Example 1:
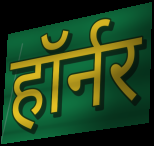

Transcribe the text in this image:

हॉर्नर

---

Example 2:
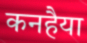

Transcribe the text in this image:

कनहैया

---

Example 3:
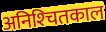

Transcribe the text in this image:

अनिश्‍चितकाल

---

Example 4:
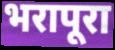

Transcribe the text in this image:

भरापूरा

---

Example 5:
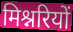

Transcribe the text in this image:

मिश्नरियों